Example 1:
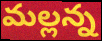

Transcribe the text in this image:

మల్లన్న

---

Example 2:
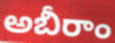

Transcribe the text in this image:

అబీరాం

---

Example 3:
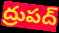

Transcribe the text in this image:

ద్రుపద్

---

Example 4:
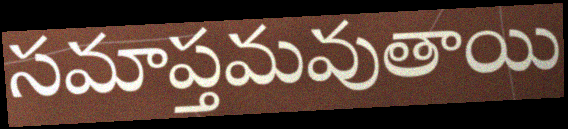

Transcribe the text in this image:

సమాప్తమవుతాయి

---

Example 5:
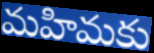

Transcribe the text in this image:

మహిమకు